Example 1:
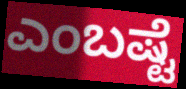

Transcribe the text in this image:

ಎಂಬಷ್ಟೆ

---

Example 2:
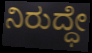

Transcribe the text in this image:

ನಿರುದ್ಧೇ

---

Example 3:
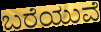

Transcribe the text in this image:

ಬರೆಯುವೆ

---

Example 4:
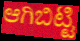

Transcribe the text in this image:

ಆಗಿಬಿಟ್ಟಿ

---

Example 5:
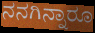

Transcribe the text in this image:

ನನಗಿನ್ನಾರೂ